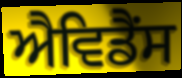
ਐਵਿਡੈਂਸ